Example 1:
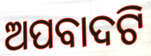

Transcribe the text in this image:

ଅପବାଦଟି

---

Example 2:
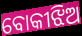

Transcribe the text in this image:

ବୋକୀଝିଅ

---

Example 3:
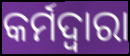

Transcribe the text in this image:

କର୍ମଦ୍ବାରା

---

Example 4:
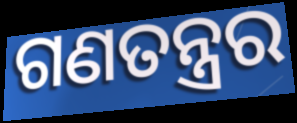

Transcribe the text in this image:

ଗଣତନ୍ତ୍ରର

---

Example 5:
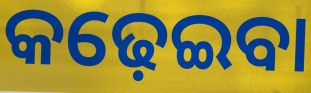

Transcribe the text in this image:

କଢ଼େଇବା